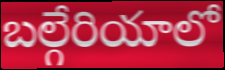
బల్గేరియాలో